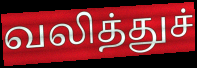
வலித்துச்